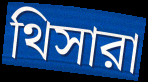
থিসারা